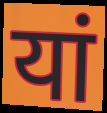
यां